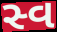
સ્વ